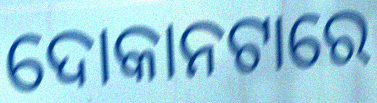
ଦୋକାନଟାରେ